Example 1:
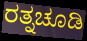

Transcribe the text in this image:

ರತ್ನಚೂಡಿ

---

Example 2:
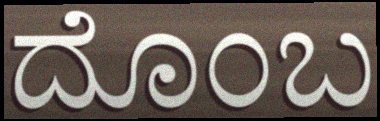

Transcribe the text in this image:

ದೊಂಬ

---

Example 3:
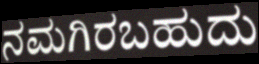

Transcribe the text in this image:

ನಮಗಿರಬಹುದು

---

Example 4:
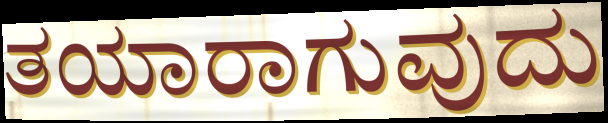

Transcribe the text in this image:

ತಯಾರಾಗುವುದು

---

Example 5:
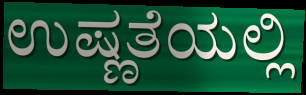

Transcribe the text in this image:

ಉಷ್ಣತೆಯಲ್ಲಿ